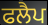
ਫਲੈਪ